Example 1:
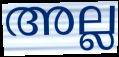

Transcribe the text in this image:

അല്ല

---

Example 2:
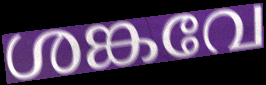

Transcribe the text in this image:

ശങ്കവേ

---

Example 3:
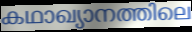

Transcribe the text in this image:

കഥാഖ്യാനത്തിലെ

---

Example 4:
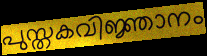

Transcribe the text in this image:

പുസ്തകവിജ്ഞാനം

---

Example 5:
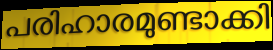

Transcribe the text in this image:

പരിഹാരമുണ്ടാക്കി